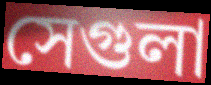
সেগুলা